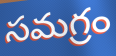
సమగ్రం